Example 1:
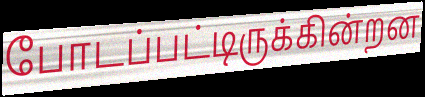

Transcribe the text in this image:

போடப்பட்டிருக்கின்றன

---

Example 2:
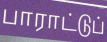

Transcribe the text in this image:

பாராட்டுப்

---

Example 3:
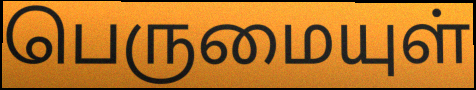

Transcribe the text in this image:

பெருமையுள்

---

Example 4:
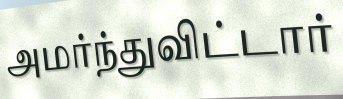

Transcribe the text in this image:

அமர்ந்துவிட்டார்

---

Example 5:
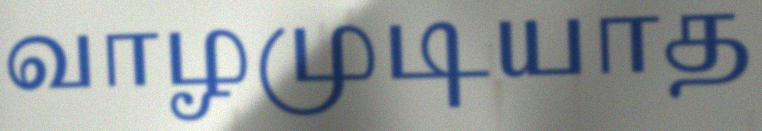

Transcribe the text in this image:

வாழமுடியாத